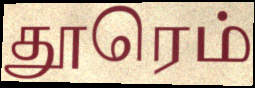
தூரெம்